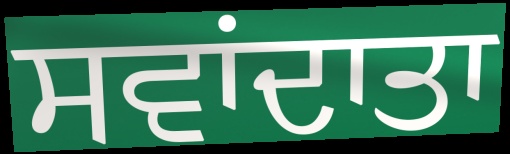
ਸਵਾਂਦਾਤਾ